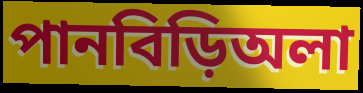
পানবিড়িঅলা